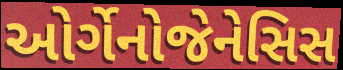
ઓર્ગેનોજેનેસિસ